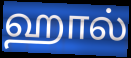
ஹால்